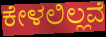
ಕೇಳಲಿಲ್ಲವೆ